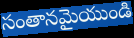
సంతానమైయుండి